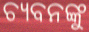
ଚ୍ୟବନଙ୍କୁ